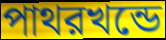
পাথরখন্ডে